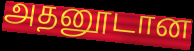
அதனூடான